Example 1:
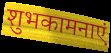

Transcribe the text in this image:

शुभकामनाएं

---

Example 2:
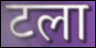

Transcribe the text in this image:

टला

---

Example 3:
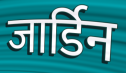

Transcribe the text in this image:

जार्डिन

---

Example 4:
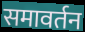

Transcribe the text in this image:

समावर्तन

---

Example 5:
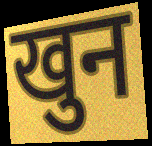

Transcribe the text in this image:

खुन